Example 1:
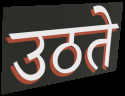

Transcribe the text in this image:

उठते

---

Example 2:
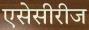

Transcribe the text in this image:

एसेसीरीज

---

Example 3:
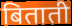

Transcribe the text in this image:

बिताती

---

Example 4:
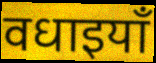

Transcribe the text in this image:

वधाइयाँ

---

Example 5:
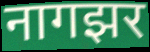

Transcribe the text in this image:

नागझर